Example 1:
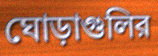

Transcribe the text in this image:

ঘোড়াগুলির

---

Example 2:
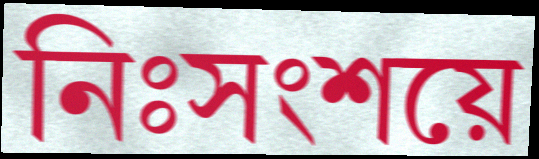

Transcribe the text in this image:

নিঃসংশয়ে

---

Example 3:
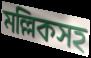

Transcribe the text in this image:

মল্লিকসহ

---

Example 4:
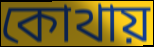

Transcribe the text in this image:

কোথায়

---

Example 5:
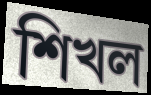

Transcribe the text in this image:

শিখল